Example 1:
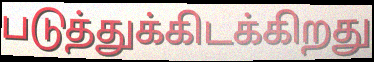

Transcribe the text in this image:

படுத்துக்கிடக்கிறது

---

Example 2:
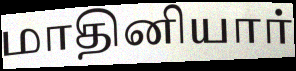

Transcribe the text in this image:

மாதினியார்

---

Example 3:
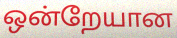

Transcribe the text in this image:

ஒன்றேயான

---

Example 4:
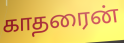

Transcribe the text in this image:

காதரைன்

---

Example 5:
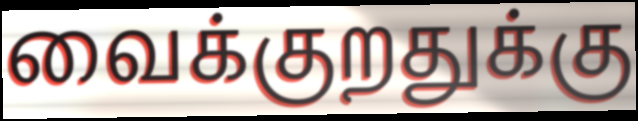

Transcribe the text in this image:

வைக்குறதுக்கு